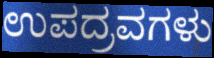
ಉಪದ್ರವಗಳು